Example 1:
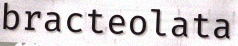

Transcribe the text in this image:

bracteolata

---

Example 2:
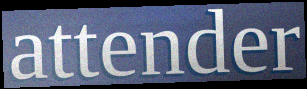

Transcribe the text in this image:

attender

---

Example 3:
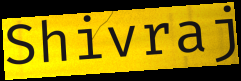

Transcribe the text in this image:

Shivraj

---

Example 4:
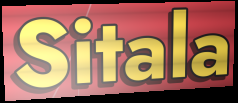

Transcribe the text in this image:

Sitala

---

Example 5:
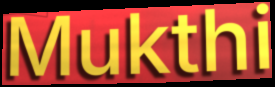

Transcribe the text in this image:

Mukthi